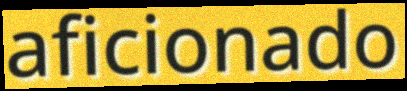
aficionado